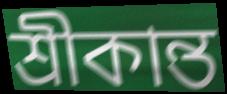
শ্রীকান্ত